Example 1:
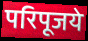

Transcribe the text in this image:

परिपूजये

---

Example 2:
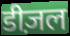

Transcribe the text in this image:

डीज़ल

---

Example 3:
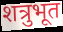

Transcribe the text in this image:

शत्रुभूत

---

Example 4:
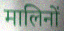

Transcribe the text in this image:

मालिनों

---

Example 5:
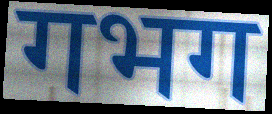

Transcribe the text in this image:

गभग